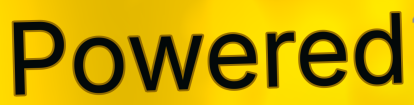
Powered